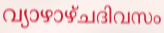
വ്യാഴാഴ്ചദിവസം